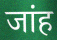
जांह